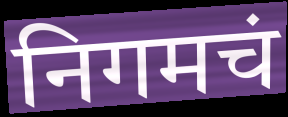
निगमचं